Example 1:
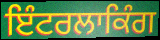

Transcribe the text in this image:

ਇੰਟਰਲਾਕਿੰਗ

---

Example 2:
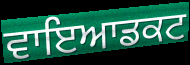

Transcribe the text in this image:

ਵਾਇਆਡਕਟ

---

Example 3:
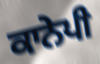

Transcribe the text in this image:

ਕਾਨੇਪੀ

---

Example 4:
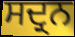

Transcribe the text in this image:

ਸਦ੍ਰਨ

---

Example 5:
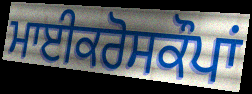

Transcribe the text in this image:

ਮਾਈਕਰੋਸਕੌਪਾਂ